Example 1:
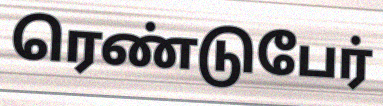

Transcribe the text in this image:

ரெண்டுபேர்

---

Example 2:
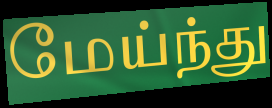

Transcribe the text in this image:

மேய்ந்து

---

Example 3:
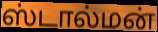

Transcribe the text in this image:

ஸ்டால்மன்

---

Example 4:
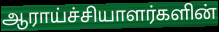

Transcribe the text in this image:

ஆராய்ச்சியாளர்களின்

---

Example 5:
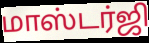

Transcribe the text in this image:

மாஸ்டர்ஜி